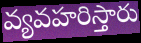
వ్యవహరిస్తారు